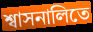
শ্বাসনালিতে